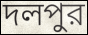
দলপুর